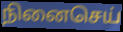
நினைசெய்